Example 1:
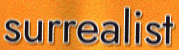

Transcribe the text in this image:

surrealist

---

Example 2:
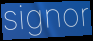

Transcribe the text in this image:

signor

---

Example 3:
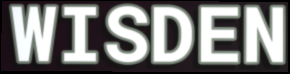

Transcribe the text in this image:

WISDEN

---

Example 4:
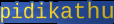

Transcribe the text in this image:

pidikathu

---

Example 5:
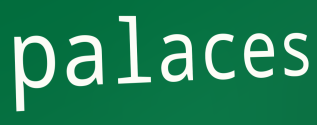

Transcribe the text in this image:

palaces